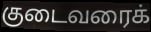
குடைவரைக்